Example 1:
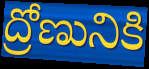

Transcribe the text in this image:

ద్రోణునికి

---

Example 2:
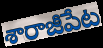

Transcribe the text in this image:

శారాజీపేట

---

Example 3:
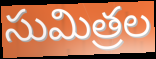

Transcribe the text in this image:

సుమిత్రల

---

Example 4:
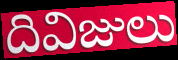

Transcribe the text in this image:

దివిజులు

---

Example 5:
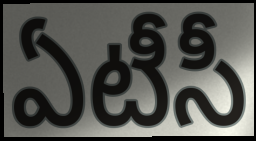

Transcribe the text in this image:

ఏటీసీ